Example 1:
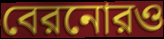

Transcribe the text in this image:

বেরনোরও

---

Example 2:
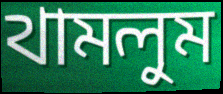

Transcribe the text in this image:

থামলুম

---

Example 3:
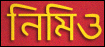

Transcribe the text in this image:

নিমিও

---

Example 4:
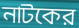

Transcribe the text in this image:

নাটকের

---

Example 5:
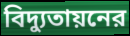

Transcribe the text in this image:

বিদ্যুতায়নের